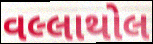
વલ્લાથોલ